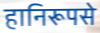
हानिरूपसे